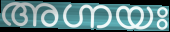
അഗ്നയഃ